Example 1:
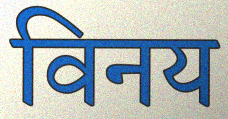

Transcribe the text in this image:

विनय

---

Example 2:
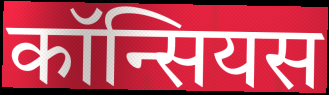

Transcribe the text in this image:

कॉन्सियस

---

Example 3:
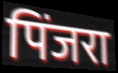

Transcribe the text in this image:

पिंजरा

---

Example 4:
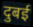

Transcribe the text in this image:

दुबई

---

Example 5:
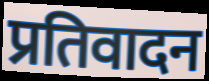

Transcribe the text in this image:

प्रतिवादन